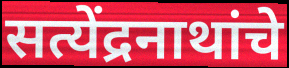
सत्येंद्रनाथांचे